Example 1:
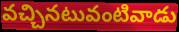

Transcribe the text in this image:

వచ్చినటువంటివాడు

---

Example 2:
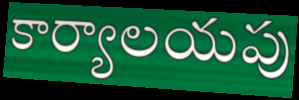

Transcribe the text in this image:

కార్యాలయపు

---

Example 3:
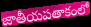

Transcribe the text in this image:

జాతీయపతాకంలో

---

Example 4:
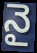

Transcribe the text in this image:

నై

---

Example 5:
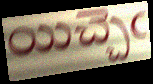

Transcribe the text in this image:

యిచ్చెఁ